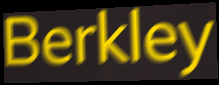
Berkley